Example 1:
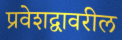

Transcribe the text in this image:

प्रवेशद्वावरील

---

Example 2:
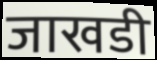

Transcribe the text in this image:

जाखडी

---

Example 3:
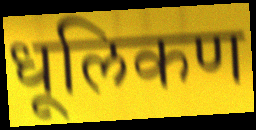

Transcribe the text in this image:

धूलिकण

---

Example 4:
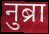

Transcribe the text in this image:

नुब्रा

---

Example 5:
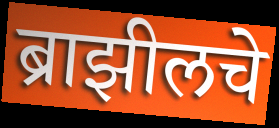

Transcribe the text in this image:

ब्राझीलचे